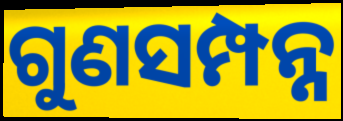
ଗୁଣସମ୍ପନ୍ନ